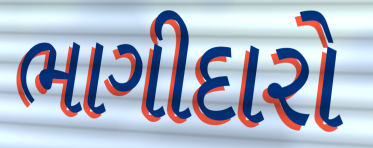
ભાગીદારો